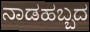
ನಾಡಹಬ್ಬದ